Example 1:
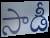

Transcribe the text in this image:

సాడీ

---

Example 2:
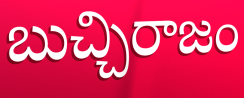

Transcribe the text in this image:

బుచ్చిరాజం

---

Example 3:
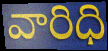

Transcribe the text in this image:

వారిధి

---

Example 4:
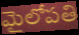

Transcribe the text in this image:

మైలోపతి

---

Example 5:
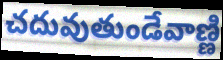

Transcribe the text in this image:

చదువుతుండేవాణ్ణి